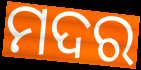
ମଦର